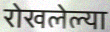
रोखलेल्या